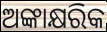
ଅଙ୍କାକ୍ଷରିକ